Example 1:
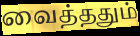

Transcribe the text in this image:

வைத்ததும்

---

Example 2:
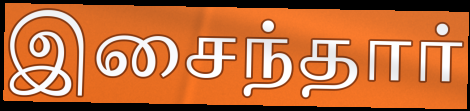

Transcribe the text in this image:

இசைந்தார்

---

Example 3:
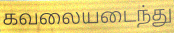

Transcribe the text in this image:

கவலையடைந்து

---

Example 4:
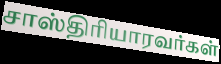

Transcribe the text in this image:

சாஸ்திரியாரவர்கள்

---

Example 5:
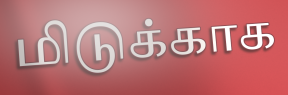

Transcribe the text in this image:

மிடுக்காக